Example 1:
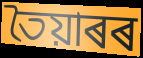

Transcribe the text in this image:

তৈয়াৰৰ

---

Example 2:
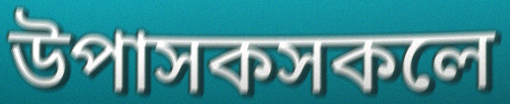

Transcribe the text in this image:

উপাসকসকলে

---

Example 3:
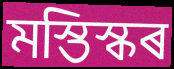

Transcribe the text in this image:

মস্তিস্কৰ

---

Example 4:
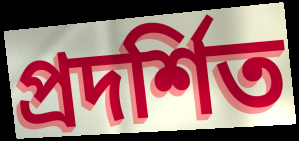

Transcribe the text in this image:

প্ৰদৰ্শিত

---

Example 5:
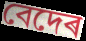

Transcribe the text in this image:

বেদেৰ